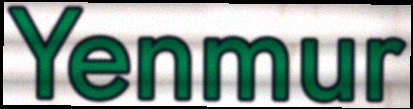
Yenmur